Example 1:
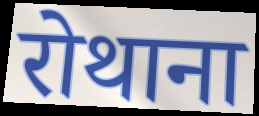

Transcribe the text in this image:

रोथाना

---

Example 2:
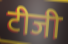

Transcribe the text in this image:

टीजी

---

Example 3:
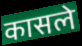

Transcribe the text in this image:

कासले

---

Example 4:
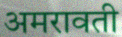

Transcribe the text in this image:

अमरावती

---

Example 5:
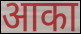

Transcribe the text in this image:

आका